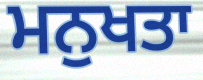
ਮਨੁਖਤਾ